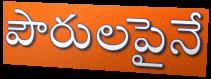
పౌరులపైనే